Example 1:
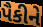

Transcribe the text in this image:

પૈકીને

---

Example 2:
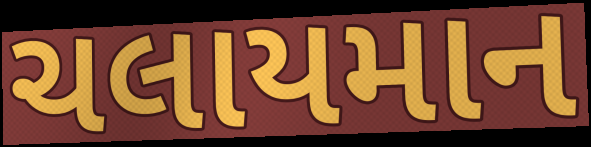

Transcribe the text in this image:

ચલાયમાન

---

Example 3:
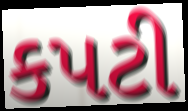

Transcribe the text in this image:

કપટી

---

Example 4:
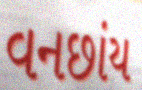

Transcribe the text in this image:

વનછાંય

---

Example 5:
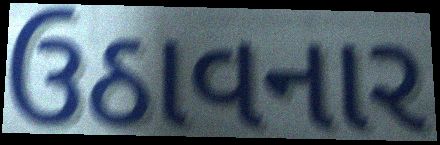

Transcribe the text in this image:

ઉઠાવનાર